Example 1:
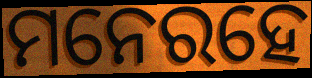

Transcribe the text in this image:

ମନେରହେ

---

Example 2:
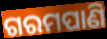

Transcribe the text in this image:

ଗରମପାଣି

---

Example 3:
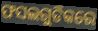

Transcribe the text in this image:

ଫସଲଗୁଡିକରେ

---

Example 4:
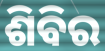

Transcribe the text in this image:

ଶିବିର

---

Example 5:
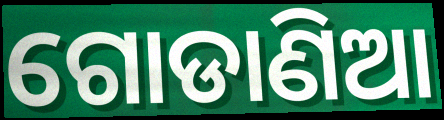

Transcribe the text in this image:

ଗୋଡାଣିଆ